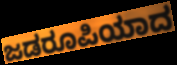
ಜಡರೂಪಿಯಾದ